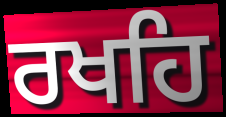
ਰਖਹਿ